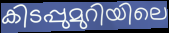
കിടപ്പുമുറിയിലെ